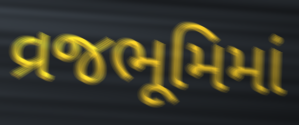
વ્રજભૂમિમાં